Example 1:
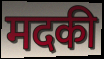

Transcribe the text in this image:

मदकी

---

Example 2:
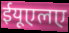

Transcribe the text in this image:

ईयूएलए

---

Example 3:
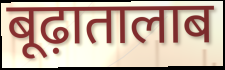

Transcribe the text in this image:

बूढ़ातालाब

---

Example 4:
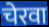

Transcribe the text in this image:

चेरवा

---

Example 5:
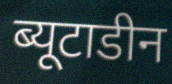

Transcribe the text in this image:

ब्यूटाडीन